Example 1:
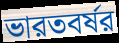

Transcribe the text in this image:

ভারতবর্ষর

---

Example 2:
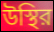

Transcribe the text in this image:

উস্থির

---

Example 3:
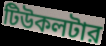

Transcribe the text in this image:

টিউকলটার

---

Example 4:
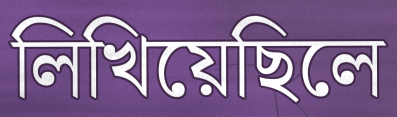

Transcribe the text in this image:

লিখিয়েছিলে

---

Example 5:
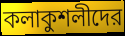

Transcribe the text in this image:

কলাকুশলীদের